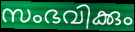
സംഭവിക്കും